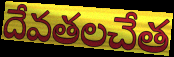
దేవతలచేత